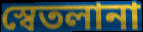
স্বেতলানা